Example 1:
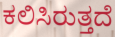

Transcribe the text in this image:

ಕಲಿಸಿರುತ್ತದೆ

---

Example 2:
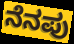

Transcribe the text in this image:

ನೆನಪು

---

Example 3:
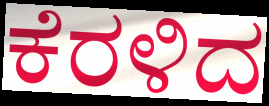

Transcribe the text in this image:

ಕೆರಳಿದ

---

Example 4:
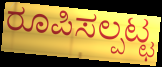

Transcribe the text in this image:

ರೂಪಿಸಲ್ಪಟ್ಟ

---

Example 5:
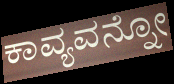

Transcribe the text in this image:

ಕಾವ್ಯವನ್ನೋ